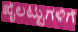
ಪೈಲಟ್ಟುಗಳಿಗೆ